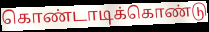
கொண்டாடிக்கொண்டு